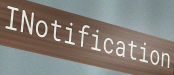
INotification